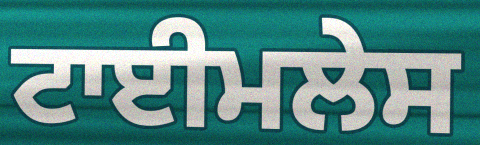
ਟਾਈਮਲੇਸ